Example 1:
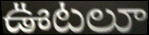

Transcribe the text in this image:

ఊటలూ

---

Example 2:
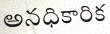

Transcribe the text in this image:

అనధికారిక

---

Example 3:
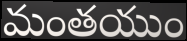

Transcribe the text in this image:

మంతయుం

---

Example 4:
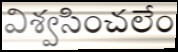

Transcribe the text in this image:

విశ్వసించలేం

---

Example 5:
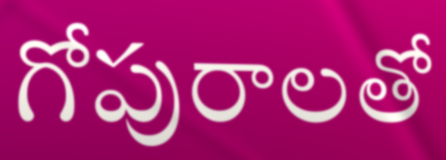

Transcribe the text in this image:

గోపురాలతో